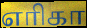
எரிகா